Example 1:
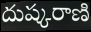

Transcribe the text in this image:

దుష్కరాణి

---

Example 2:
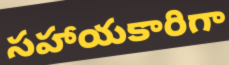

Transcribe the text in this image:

సహాయకారిగా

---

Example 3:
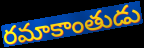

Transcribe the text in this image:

రమాకాంతుడు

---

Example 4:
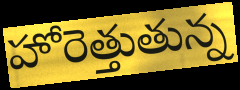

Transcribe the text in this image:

హోరెత్తుతున్న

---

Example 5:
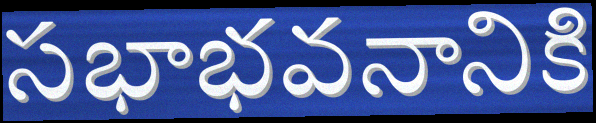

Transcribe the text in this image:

సభాభవనానికి